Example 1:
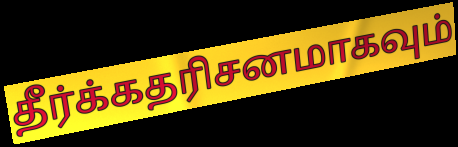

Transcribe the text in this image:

தீர்க்கதரிசனமாகவும்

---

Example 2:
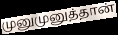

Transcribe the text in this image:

முனுமுனுத்தான்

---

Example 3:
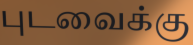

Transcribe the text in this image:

புடவைக்கு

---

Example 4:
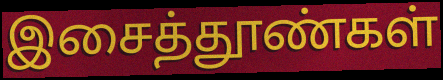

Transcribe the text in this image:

இசைத்தூண்கள்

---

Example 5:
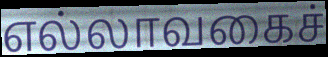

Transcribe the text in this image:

எல்லாவகைச்